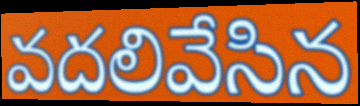
వదలివేసిన